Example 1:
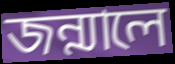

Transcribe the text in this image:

জন্মালে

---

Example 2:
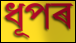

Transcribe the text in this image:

ধূপৰ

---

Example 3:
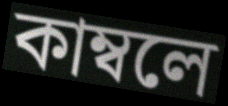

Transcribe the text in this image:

কাম্বলে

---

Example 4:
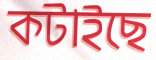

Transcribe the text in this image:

কটাইছে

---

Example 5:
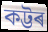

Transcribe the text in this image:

কট্টৰ